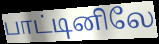
பாட்டினிலே